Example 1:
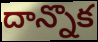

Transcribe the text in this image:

దాన్నొక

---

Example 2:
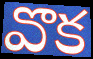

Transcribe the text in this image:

వొక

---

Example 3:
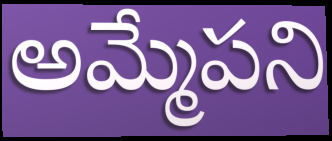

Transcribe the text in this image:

అమ్మేపని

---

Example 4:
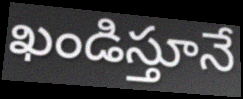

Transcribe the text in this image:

ఖండిస్తూనే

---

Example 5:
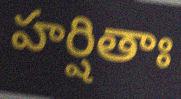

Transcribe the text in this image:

హర్షితాః